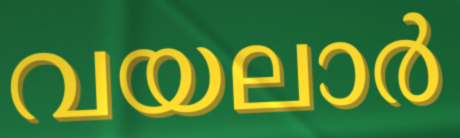
വയലാർ